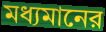
মধ্যমানের